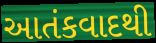
આતંકવાદથી